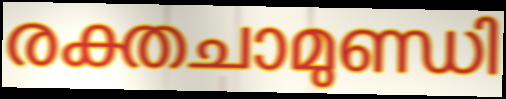
രക്തചാമുണ്ഡി